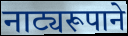
नाट्यरूपाने